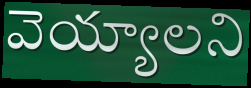
వెయ్యాలని